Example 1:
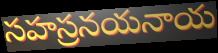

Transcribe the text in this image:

సహస్రనయనాయ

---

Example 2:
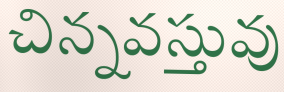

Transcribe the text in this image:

చిన్నవస్తువు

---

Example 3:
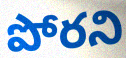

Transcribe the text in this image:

పోరని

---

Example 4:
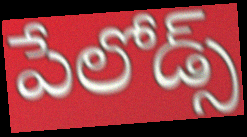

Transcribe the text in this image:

పేలోడ్స్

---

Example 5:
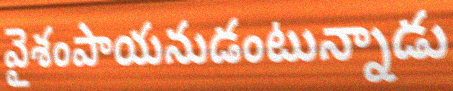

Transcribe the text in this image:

వైశంపాయనుడంటున్నాడు